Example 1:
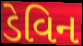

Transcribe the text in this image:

ડેવિન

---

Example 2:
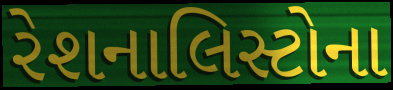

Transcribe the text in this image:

રેશનાલિસ્ટોના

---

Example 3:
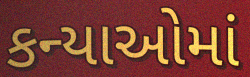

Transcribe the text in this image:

કન્યાઓમાં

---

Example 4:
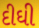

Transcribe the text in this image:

દીઘી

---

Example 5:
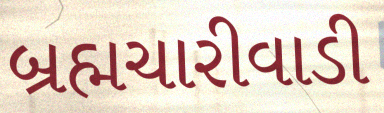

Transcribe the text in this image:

બ્રહ્મચારીવાડી